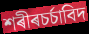
শৰীৰচৰ্চাবিদ